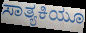
ಸಾತ್ಯಕಿಯೂ